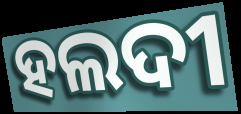
ହଲଦୀ